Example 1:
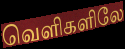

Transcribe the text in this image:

வெளிகளிலே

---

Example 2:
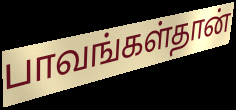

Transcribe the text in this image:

பாவங்கள்தான்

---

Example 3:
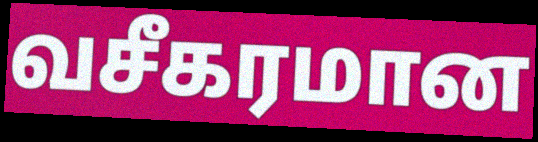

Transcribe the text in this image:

வசீகரமான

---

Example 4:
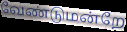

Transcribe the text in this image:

வேண்டுமன்றே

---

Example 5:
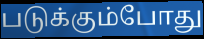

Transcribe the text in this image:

படுக்கும்போது